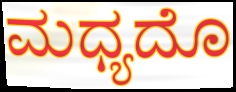
ಮಧ್ಯದೊ